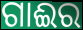
ଗାଈର